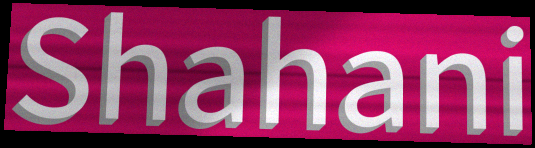
Shahani